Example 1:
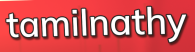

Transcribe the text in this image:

tamilnathy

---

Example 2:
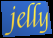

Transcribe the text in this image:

jelly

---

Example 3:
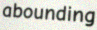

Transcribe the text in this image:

abounding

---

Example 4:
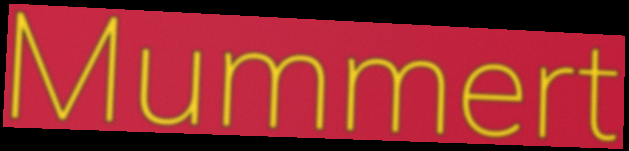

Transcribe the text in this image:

Mummert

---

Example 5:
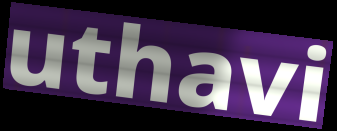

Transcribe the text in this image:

uthavi